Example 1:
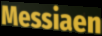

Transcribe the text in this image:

Messiaen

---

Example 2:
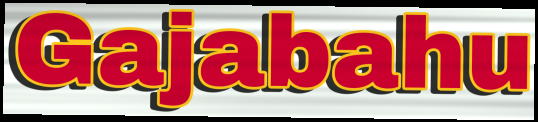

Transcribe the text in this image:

Gajabahu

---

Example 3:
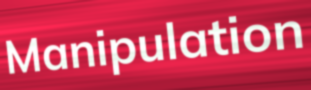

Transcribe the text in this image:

Manipulation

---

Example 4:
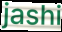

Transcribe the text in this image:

jashi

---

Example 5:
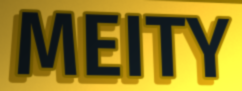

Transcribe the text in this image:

MEITY